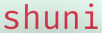
shuni